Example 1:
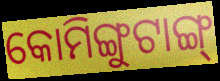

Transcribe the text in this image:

କୋମିଙ୍ଗୁଟାଙ୍ଗ୍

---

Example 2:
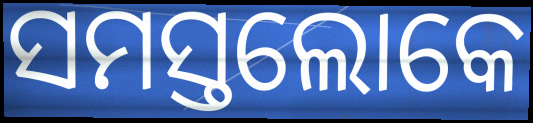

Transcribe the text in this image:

ସମସ୍ତଲୋକେ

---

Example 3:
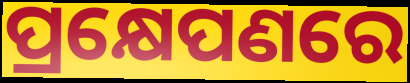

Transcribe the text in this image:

ପ୍ରକ୍ଷେପଣରେ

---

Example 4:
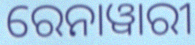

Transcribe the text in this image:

ରେନାୱାରୀ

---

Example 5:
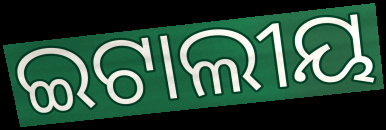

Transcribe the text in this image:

ଇଟାଲୀୟ